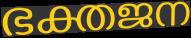
ഭക്തജന